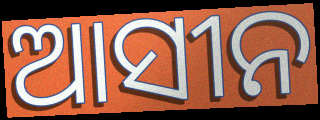
ଆସୀନ